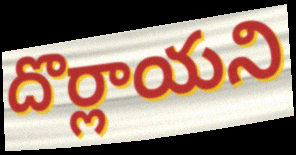
దొర్లాయని